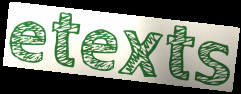
etexts